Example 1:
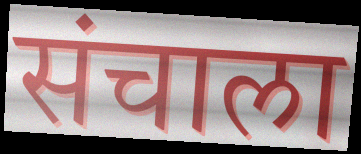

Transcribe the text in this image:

संचाला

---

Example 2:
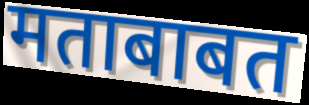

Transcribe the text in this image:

मताबाबत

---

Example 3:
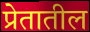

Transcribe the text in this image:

प्रेतातील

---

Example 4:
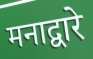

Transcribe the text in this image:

मनाद्वारे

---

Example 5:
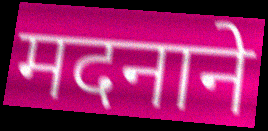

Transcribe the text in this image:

मदनाने